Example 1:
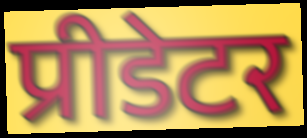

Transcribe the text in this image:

प्रीडेटर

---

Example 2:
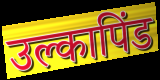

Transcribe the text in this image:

उल्कापिंड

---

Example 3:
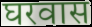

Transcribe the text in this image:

घरवास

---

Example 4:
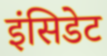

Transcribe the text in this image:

इंसिडेट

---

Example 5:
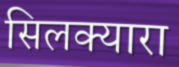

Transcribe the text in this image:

सिलक्यारा